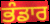
ਭੰਡਾਰ